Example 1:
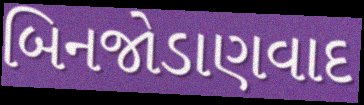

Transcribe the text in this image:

બિનજોડાણવાદ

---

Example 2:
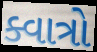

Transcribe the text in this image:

ક્વાત્રો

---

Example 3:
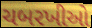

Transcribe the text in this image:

ચબરખીઓ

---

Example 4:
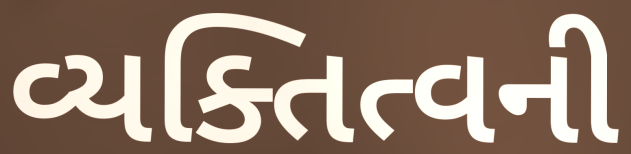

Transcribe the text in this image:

વ્યક્તિત્વની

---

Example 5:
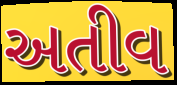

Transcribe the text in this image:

અતીવ